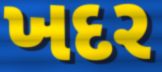
ખદર